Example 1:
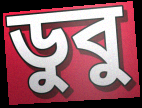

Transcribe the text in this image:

ডুবু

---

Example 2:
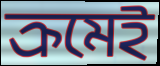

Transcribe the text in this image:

ক্রমেই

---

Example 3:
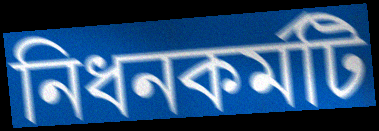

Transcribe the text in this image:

নিধনকর্মটি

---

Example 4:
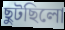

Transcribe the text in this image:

ছুটছিলো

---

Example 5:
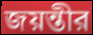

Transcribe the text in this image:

জয়ন্তীর